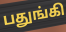
பதுங்கி